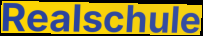
Realschule